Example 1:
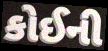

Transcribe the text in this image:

કોઈની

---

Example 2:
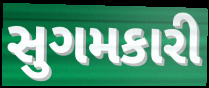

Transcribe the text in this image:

સુગમકારી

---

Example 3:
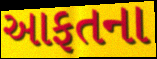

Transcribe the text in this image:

આફતના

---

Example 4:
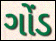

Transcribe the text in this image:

ગોંડ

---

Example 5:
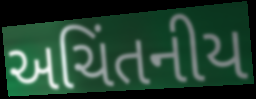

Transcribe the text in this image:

અચિંતનીય